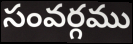
సంవర్గము